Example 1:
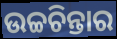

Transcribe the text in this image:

ଉଚ୍ଚଚିନ୍ତାର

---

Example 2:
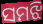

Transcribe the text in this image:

ସମଝି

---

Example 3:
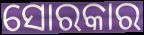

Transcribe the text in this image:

ସୋରକାର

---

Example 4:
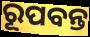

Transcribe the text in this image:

ରୂପବନ୍ତ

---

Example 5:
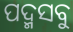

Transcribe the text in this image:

ପଦ୍ମସବୁ